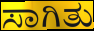
ಸಾಗಿತು